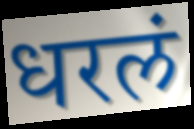
धरलं